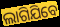
ଲାଗିଯିବେ